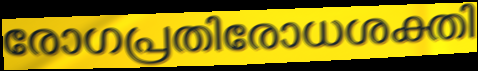
രോഗപ്രതിരോധശക്തി